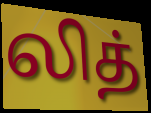
லித்